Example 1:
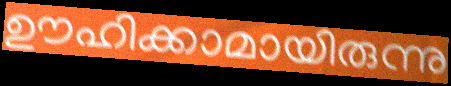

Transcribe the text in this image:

ഊഹിക്കാമായിരുന്നു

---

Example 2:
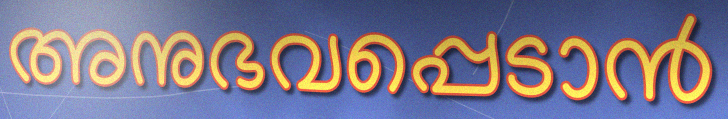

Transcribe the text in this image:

അനുഭവപ്പെടാൻ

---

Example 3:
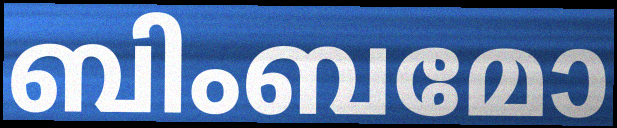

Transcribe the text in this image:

ബിംബമോ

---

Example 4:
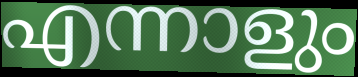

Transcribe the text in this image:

എന്നാളും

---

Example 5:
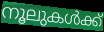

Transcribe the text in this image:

നൂലുകൾക്ക്